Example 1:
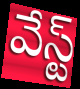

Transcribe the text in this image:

వేస్ట్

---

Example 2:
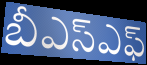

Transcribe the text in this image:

బీఎస్ఎఫ్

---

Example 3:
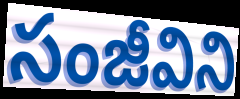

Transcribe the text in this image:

సంజీవిని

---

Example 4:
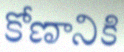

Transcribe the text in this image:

కోణానికి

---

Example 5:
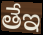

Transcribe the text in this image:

తేఇ